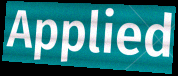
Applied